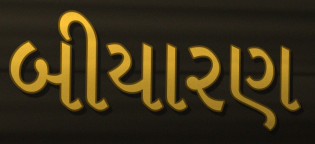
બીયારણ